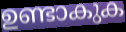
ഉണ്ടാകുക